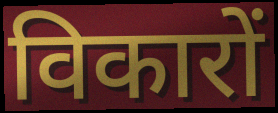
विकारों